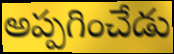
అప్పగించేడు